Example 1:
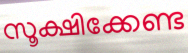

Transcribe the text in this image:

സൂക്ഷിക്കേണ്ട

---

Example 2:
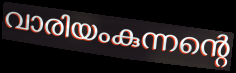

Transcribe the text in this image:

വാരിയംകുന്നന്റെ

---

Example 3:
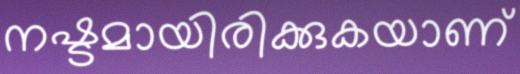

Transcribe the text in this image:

നഷ്ടമായിരിക്കുകയാണ്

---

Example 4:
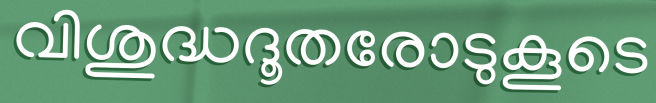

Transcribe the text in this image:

വിശുദ്ധദൂതരോടുകൂടെ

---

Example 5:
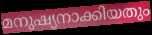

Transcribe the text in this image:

മനുഷ്യനാക്കിയതും